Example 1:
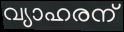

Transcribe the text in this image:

വ്യാഹരന്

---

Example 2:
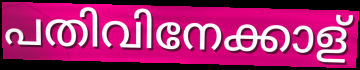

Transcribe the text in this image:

പതിവിനേക്കാള്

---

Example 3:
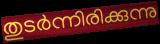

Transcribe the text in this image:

തുടർന്നിരിക്കുന്നു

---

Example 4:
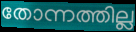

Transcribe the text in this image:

തോന്നത്തില്ല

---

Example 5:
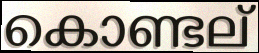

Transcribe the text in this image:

കൊണ്ടല്